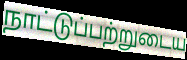
நாட்டுப்பற்றுடைய